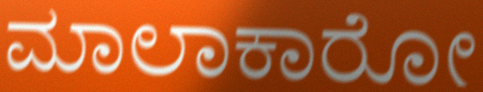
ಮಾಲಾಕಾರೋ